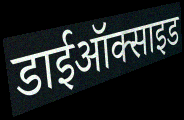
डाईऑक्साइड